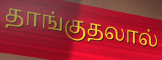
தாங்குதலால்